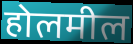
होलमील